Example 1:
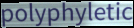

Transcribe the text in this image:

polyphyletic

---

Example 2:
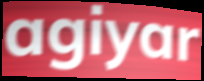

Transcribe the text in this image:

agiyar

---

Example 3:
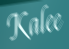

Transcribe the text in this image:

Kalee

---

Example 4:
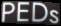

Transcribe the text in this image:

PEDs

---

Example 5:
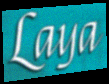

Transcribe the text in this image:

Laya